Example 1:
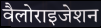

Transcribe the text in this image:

वैलोराइजेशन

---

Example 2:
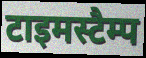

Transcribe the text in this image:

टाइमस्टैम्प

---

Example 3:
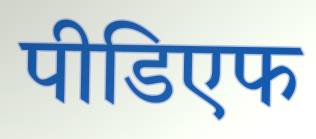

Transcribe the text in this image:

पीडिएफ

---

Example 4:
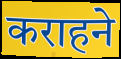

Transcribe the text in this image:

कराहने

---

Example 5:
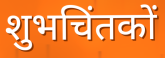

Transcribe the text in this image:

शुभचिंतकों